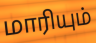
மாரியும்